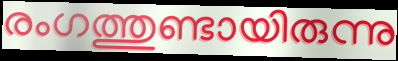
രംഗത്തുണ്ടായിരുന്നു